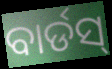
ବାର୍ଡସ୍